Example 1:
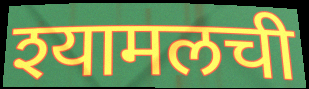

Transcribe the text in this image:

श्यामलची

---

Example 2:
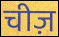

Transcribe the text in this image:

चीज़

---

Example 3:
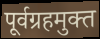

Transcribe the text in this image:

पूर्वग्रहमुक्त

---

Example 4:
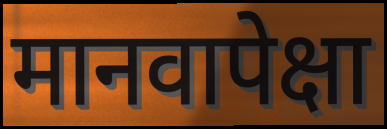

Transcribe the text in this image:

मानवापेक्षा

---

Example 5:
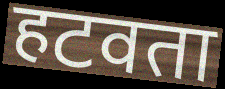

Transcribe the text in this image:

हटवता